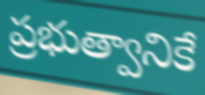
ప్రభుత్వానికే